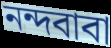
নন্দবাবা